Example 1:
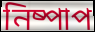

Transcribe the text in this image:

নিষ্পাপ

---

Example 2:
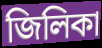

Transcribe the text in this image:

জিলিকা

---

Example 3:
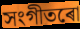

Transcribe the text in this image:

সংগীতৰো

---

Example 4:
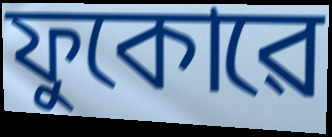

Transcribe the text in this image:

ফুকোৱে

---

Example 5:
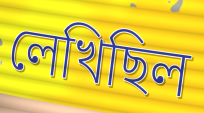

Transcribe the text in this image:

লেখিছিল